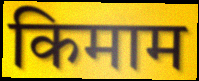
किमाम